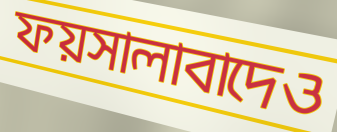
ফয়সালাবাদেও